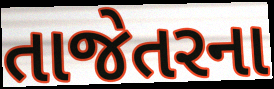
તાજેતરના